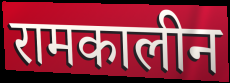
रामकालीन